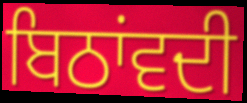
ਬਿਠਾਂਵਦੀ